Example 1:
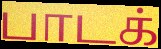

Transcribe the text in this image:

பாடக்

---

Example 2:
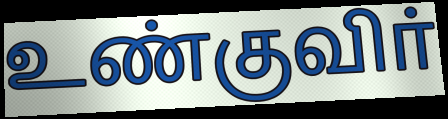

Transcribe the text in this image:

உண்குவிர்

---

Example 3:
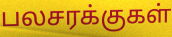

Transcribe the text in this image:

பலசரக்குகள்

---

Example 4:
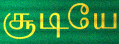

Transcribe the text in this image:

சூடியே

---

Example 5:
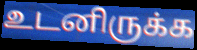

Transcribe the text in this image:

உடனிருக்க